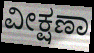
ವೀಕ್ಷಣಾ